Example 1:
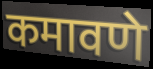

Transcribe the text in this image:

कमावणे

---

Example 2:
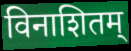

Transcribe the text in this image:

विनाशितम्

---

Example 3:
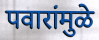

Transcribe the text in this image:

पवारांमुळे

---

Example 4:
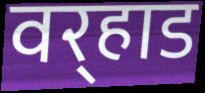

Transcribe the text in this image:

वर्‍हाड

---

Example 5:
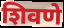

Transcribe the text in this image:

शिवणे